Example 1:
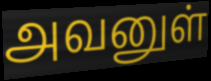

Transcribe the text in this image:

அவனுள்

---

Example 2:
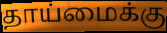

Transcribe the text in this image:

தாய்மைக்கு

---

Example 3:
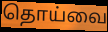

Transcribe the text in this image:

தொய்வை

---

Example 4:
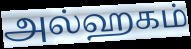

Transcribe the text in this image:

அல்ஹகம்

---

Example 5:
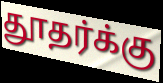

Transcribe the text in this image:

தூதர்க்கு